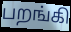
பறங்கி